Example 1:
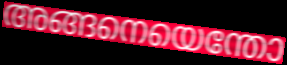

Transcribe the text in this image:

അങ്ങനെയെന്തോ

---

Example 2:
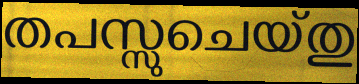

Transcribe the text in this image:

തപസ്സുചെയ്തു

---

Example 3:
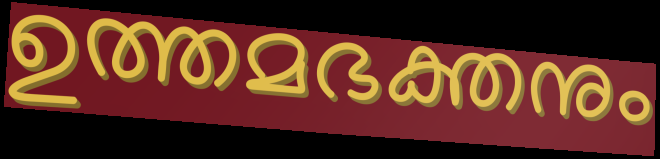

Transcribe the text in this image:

ഉത്തമഭക്തനും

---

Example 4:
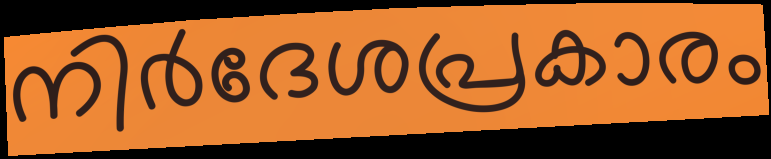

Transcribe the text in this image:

നിർദേശപ്രകാരം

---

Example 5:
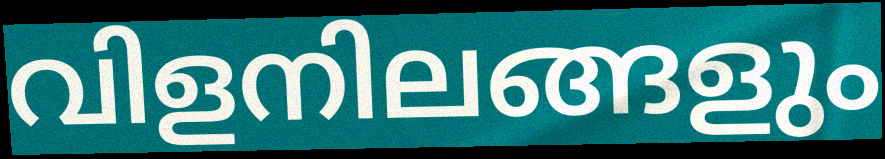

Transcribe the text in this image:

വിളനിലങ്ങളും